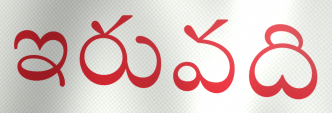
ఇరువది